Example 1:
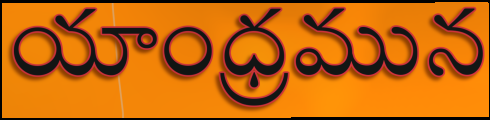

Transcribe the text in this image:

యాంధ్రమున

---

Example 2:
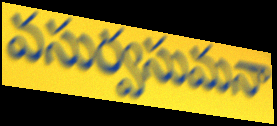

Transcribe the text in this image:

వసుర్వసుమనా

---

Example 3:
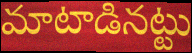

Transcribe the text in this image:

మాటాడినట్టు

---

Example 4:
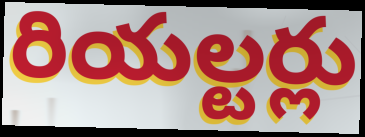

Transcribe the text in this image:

రియల్టర్లు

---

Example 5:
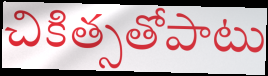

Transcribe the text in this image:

చికిత్సతోపాటు